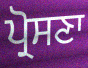
ਪ੍ਰੋਸਣਾ